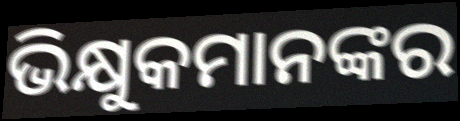
ଭିକ୍ଷୁକମାନଙ୍କର